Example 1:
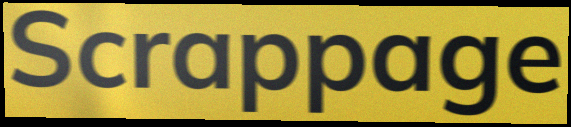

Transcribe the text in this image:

Scrappage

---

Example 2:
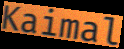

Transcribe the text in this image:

Kaimal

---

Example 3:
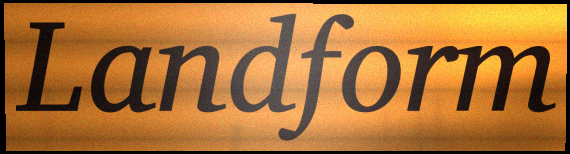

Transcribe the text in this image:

Landform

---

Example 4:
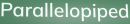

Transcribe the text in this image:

Parallelopiped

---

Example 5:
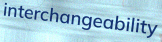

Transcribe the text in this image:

interchangeability